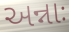
અન્નાઃ